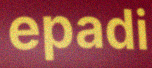
epadi